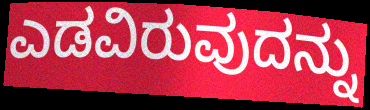
ಎಡವಿರುವುದನ್ನು